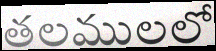
తలములలో